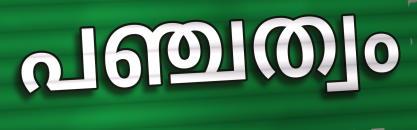
പഞ്ചത്വം